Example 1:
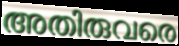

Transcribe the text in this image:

അതിരുവരെ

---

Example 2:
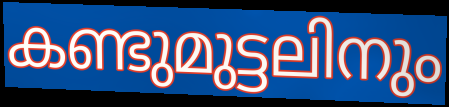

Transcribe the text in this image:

കണ്ടുമുട്ടലിനും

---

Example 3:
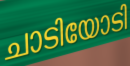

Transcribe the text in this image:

ചാടിയോടി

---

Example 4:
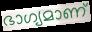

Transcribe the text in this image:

ഭാഗ്യമാണ്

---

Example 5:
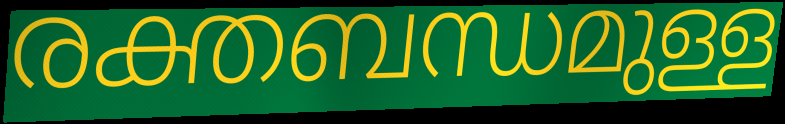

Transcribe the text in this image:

രക്തബന്ധമുള്ള